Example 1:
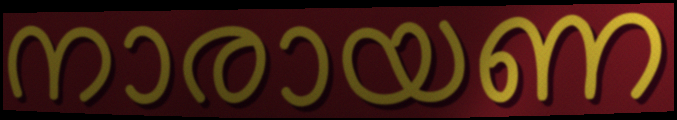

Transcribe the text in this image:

നാരായണ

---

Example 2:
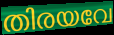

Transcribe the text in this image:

തിരയവേ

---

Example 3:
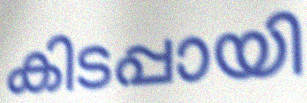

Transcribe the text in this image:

കിടപ്പായി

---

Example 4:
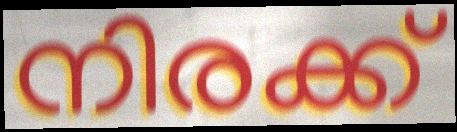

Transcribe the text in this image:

നിരക്ക്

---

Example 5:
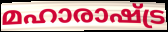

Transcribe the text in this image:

മഹാരാഷ്ട്ര